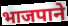
भाजपाने